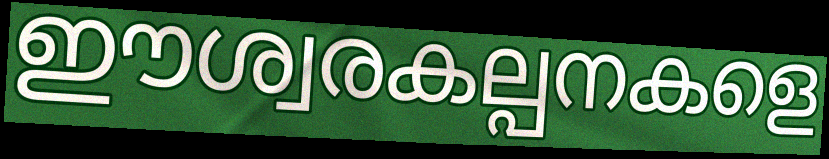
ഈശ്വരകല്പനകളെ